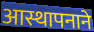
आस्थापनाने